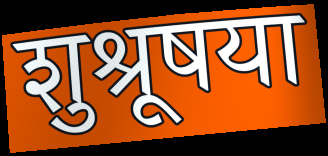
शुश्रूषया